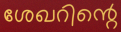
ശേഖറിന്റെ